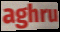
aghru